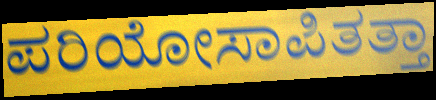
ಪರಿಯೋಸಾಪಿತತ್ತಾ